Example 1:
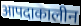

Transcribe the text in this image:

आपदाकालीन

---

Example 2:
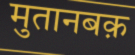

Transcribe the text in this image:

मुतानबक़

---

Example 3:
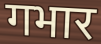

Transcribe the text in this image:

गभार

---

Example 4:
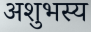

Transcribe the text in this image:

अशुभस्य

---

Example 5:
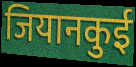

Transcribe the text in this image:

जियानकुई